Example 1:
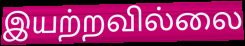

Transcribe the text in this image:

இயற்றவில்லை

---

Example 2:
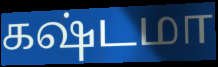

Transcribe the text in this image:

கஷ்டமா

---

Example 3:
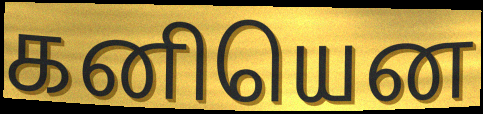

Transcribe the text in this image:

கனியென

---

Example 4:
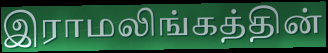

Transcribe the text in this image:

இராமலிங்கத்தின்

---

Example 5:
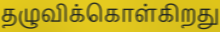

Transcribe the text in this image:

தழுவிக்கொள்கிறது